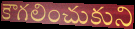
కౌగలించుకుని